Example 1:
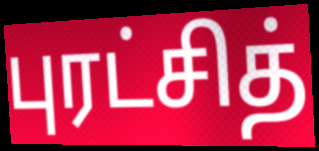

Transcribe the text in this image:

புரட்சித்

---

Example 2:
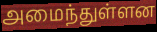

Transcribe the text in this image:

அமைந்துள்ளன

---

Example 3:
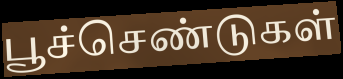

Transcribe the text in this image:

பூச்செண்டுகள்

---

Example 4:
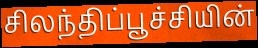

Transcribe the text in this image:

சிலந்திப்பூச்சியின்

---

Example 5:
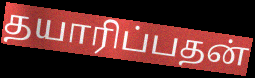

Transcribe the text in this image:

தயாரிப்பதன்